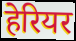
हेरियर